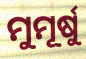
ମୁମୂର୍ଷୁ